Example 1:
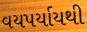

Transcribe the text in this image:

વયપર્યાયથી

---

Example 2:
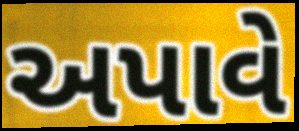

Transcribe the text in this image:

અપાવે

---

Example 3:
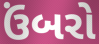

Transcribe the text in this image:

ઉંબરો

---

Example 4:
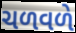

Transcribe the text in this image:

ચળવળે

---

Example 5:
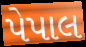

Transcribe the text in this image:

પેપાલ